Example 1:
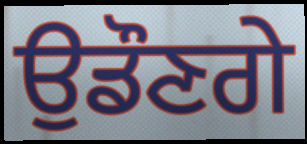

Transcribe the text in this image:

ਉਡੌਣਗੇ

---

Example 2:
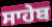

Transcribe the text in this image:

ਸਾਹੇਬ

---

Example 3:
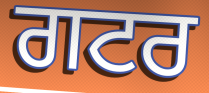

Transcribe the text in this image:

ਗਟਰ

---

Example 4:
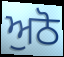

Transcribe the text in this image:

ਅੁਠੋ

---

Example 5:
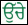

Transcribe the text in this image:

ਉੱਚੇ